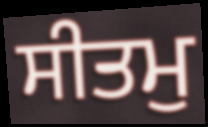
ਸੀਤਮੁ